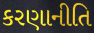
કરણાનીતિ